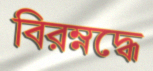
বিরম্নদ্ধে